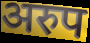
अरुप